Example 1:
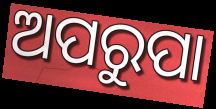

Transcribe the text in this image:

ଅପରୁପା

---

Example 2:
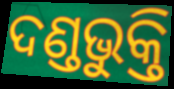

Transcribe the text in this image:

ଦଣ୍ଡଭୁକ୍ତି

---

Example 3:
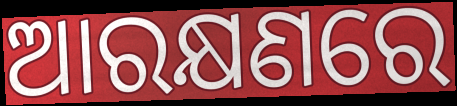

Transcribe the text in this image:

ଆରକ୍ଷଣରେ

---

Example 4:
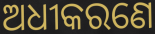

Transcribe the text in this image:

ଅଧୀକରଣେ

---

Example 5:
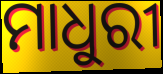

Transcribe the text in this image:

ମାଧୁରୀ